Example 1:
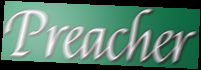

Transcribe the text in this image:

Preacher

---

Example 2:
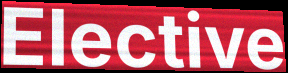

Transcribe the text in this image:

Elective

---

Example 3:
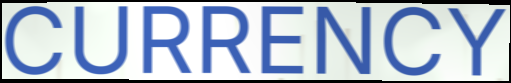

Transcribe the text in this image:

CURRENCY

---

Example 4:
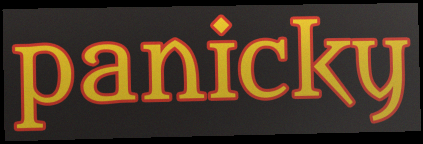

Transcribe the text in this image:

panicky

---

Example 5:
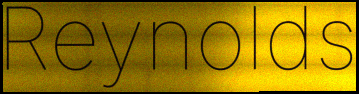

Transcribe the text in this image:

Reynolds